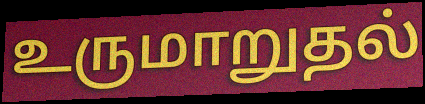
உருமாறுதல்